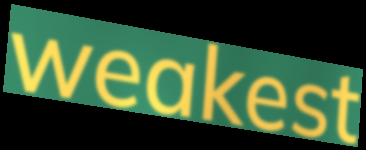
weakest